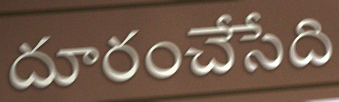
దూరంచేసేది